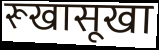
रूखासूखा